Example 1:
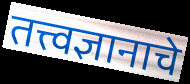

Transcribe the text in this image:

तत्त्वज्ञानाचे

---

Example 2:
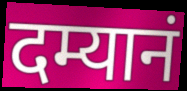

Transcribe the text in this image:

दम्यानं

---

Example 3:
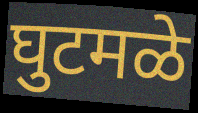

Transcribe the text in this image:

घुटमळे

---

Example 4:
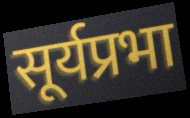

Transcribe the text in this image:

सूर्यप्रभा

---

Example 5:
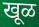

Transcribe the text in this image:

खूळ